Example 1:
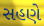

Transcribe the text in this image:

સહણે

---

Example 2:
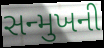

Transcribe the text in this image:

સન્મુખની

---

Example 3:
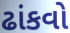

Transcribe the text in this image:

ઢાંકવો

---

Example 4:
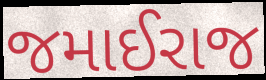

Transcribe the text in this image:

જમાઈરાજ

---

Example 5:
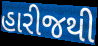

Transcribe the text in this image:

હારીજથી